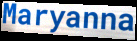
Maryanna